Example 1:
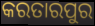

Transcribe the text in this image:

କରତାରପୁର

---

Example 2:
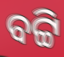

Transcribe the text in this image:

ବଟ୍ଟି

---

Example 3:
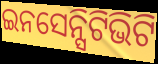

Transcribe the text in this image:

ଇନସେନ୍ସିଟିଭିଟି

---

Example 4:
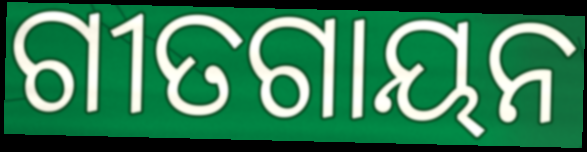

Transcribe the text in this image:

ଗୀତଗାୟନ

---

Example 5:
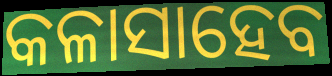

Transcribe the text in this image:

କଳାସାହେବ